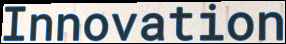
Innovation